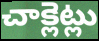
చాక్లెట్లు